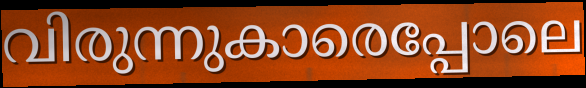
വിരുന്നുകാരെപ്പോലെ